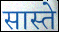
सास्ते